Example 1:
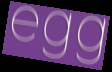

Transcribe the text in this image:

egg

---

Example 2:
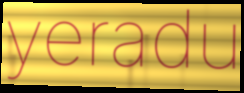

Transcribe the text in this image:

yeradu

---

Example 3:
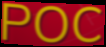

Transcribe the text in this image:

POC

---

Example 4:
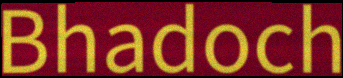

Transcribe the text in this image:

Bhadoch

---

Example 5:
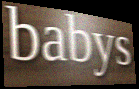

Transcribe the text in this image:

babys